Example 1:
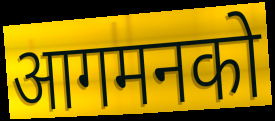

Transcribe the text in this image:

आगमनको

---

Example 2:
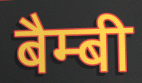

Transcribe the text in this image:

बैम्बी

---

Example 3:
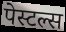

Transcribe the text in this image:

पेस्टल्स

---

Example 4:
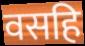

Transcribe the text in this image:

वसहि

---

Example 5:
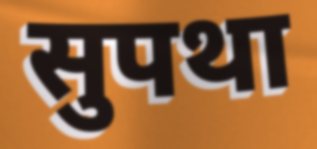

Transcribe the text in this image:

सुपथा